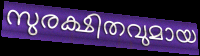
സുരക്ഷിതവുമായ